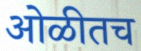
ओळीतच